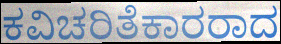
ಕವಿಚರಿತೆಕಾರರಾದ